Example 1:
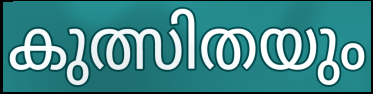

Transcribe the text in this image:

കുത്സിതയും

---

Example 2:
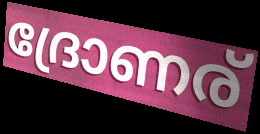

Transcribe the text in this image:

ദ്രോണര്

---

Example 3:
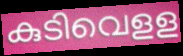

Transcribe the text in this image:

കുടിവെളള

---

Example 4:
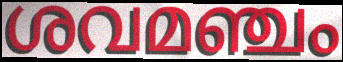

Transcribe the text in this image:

ശവമഞ്ചം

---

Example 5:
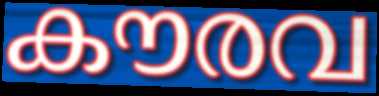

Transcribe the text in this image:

കൗരവ